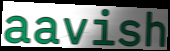
aavish